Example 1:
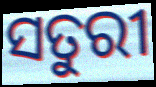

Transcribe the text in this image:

ସତୁରୀ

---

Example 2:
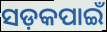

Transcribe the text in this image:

ସଡ଼କପାଇଁ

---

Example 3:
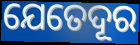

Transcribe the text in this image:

ଯେତେଦୂର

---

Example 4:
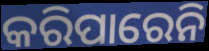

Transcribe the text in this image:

କରିପାରେନି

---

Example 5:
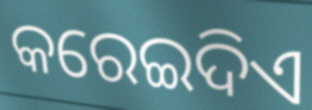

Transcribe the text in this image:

କରେଇଦିଏ